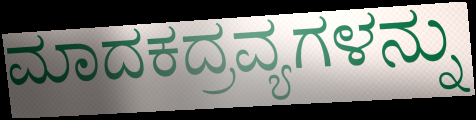
ಮಾದಕದ್ರವ್ಯಗಳನ್ನು